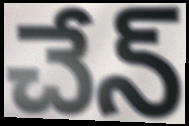
చేన్